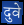
दुवे